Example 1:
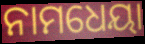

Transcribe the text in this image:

ନାମଧେୟା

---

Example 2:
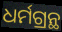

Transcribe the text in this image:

ଧର୍ମଗ୍ରନ୍ଥ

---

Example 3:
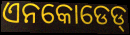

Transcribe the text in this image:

ଏନକୋଡେଡ୍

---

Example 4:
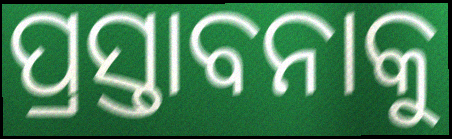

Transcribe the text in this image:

ପ୍ରସ୍ତାବନାକୁ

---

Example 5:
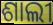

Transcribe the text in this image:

ଶାଲୀ